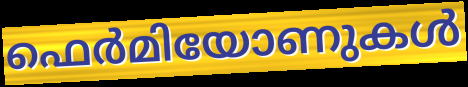
ഫെർമിയോണുകൾ